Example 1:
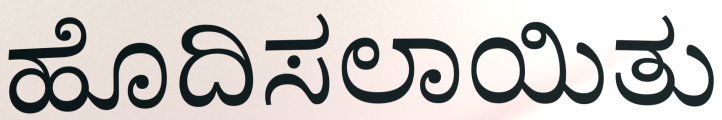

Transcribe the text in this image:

ಹೊದಿಸಲಾಯಿತು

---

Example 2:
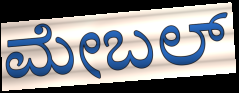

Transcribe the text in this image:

ಮೇಬಲ್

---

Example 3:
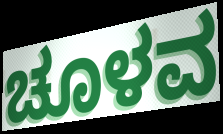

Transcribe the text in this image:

ಚೂಳವ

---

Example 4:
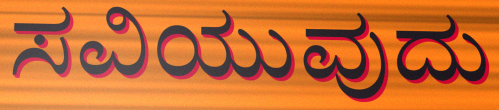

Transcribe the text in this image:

ಸವಿಯುವುದು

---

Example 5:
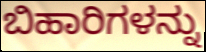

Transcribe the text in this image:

ಬಿಹಾರಿಗಳನ್ನು